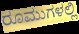
ರೂಮುಗಳಲ್ಲಿ